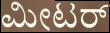
ಮೀಟರ್